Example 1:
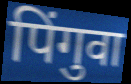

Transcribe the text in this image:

पिंगुवा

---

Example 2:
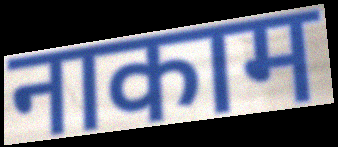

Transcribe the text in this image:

नाकाम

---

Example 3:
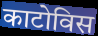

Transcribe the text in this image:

काटोविस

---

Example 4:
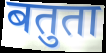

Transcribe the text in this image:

बतुता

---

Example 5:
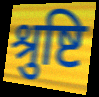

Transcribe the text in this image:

श्रुष्टि